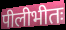
पीलीभीतः